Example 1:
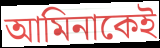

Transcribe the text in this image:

আমিনাকেই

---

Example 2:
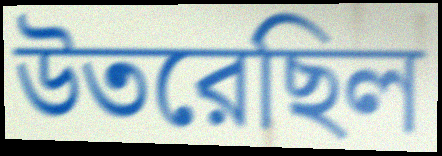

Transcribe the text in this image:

উতরেছিল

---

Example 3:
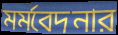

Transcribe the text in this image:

মর্মবেদনার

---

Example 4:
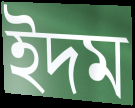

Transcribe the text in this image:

ইদম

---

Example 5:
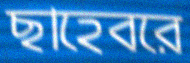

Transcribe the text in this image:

ছাহেবরে